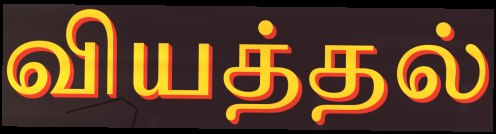
வியத்தல்